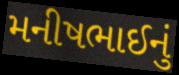
મનીષભાઈનું